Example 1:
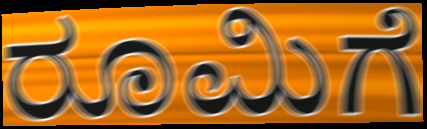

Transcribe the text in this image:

ರೂಮಿಗೆ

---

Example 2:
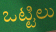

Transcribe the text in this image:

ಒಟ್ಟಿಲು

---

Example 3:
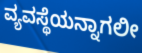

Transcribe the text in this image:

ವ್ಯವಸ್ಥೆಯನ್ನಾಗಲೀ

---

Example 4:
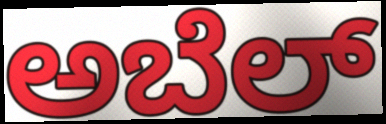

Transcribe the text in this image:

ಅಬೆಲ್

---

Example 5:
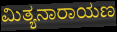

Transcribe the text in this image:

ಮಿತ್ಯನಾರಾಯಣ